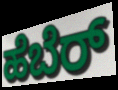
ಹೆಬೆರ್